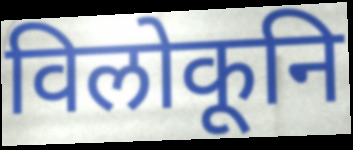
विलोकूनि